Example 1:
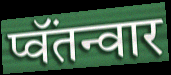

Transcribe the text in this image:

प्वॅंतन्वार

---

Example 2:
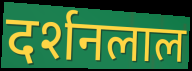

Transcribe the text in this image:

दर्शनलाल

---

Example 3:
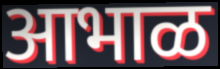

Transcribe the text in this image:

आभाळ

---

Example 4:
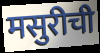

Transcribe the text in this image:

मसुरीची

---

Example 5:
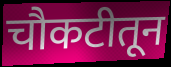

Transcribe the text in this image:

चौकटीतून